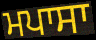
ਮਪਾਸਾ